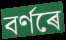
বৰ্ণৰে